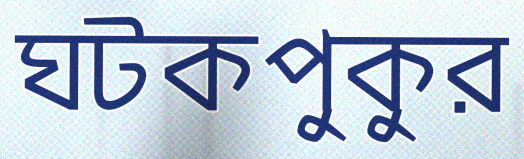
ঘটকপুকুর